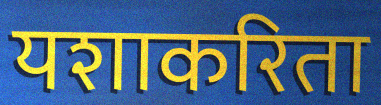
यशाकरिता